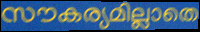
സൗകര്യമില്ലാതെ